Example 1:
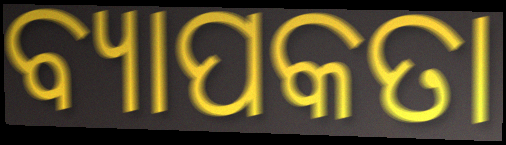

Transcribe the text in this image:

ବ୍ୟାପକତା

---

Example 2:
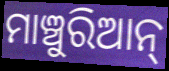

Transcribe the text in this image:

ମାଞ୍ଚୁରିଆନ୍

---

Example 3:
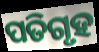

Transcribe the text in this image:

ପତିଗୃହ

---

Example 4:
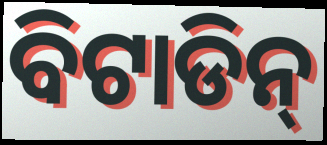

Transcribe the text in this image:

ବିଟାଡିନ୍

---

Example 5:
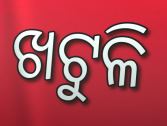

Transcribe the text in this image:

ଖଟୁଳି